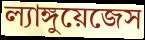
ল্যাঙ্গুয়েজেস